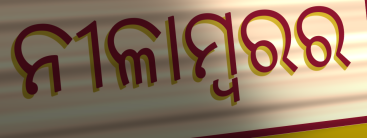
ନୀଳାମ୍ବରର